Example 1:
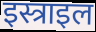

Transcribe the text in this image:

इस्त्राइल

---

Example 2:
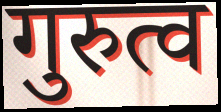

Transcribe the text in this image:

गुरुत्व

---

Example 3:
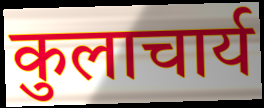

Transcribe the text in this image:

कुलाचार्य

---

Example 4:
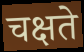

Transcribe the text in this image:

चक्षते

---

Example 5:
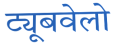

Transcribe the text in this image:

ट्यूबवेलो